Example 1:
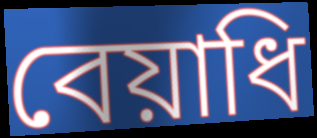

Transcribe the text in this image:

বেয়াধি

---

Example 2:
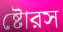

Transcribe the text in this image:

ষ্টোরস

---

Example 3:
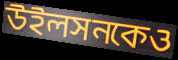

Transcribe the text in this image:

উইলসনকেও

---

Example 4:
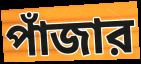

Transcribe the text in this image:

পাঁজার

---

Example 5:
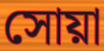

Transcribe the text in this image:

সোয়া